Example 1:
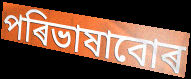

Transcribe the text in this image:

পৰিভাষাবোৰ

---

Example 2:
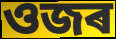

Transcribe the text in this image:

ওজৰ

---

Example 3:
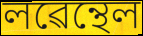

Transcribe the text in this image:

লৱেন্থেল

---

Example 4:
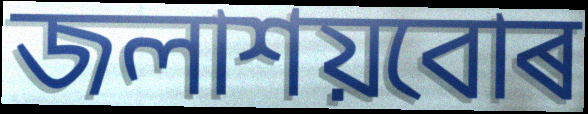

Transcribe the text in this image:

জলাশয়বোৰ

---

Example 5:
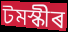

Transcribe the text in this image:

টমস্কীৰ